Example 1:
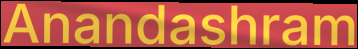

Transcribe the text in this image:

Anandashram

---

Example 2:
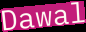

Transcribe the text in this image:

Dawal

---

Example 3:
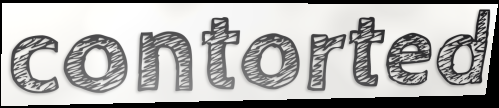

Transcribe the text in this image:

contorted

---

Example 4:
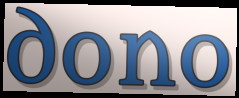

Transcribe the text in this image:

dono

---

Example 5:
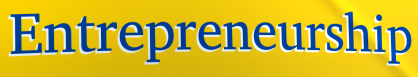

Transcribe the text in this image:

Entrepreneurship